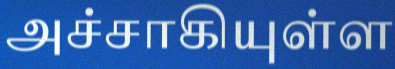
அச்சாகியுள்ள